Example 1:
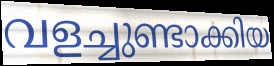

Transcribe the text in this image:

വളച്ചുണ്ടാക്കിയ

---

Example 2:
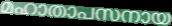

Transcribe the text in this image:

മഹാതാപസനായ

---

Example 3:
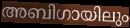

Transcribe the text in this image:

അബിഗായിലും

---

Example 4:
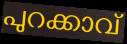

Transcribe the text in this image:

പുറക്കാവ്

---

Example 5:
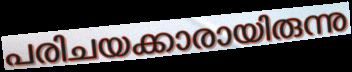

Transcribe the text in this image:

പരിചയക്കാരായിരുന്നു